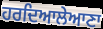
ਹਰਦਿਆਲੇਆਣਾ